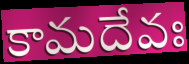
కామదేవః